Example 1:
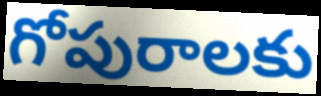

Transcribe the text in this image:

గోపురాలకు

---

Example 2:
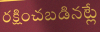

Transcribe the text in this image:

రక్షించబడినట్లే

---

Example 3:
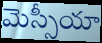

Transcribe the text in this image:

మెస్సీయా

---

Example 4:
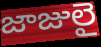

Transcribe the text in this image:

జాజులై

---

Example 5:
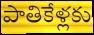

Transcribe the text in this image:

పాతికేళ్లకు